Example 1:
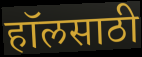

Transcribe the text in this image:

हॉलसाठी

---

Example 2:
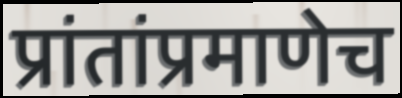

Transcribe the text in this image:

प्रांतांप्रमाणेच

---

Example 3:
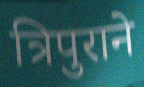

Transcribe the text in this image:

त्रिपुराने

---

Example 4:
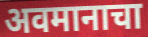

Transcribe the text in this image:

अवमानाचा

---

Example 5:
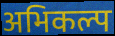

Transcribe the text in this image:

अभिकल्प